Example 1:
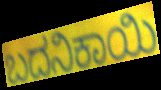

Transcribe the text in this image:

ಬದನಿಕಾಯಿ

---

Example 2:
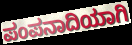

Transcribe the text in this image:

ಪಂಪನಾದಿಯಾಗಿ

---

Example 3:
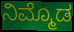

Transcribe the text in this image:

ನಿಮ್ಮೊಡ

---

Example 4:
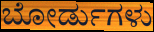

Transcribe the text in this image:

ಬೋರ್ಡುಗಳು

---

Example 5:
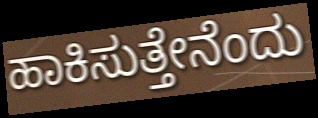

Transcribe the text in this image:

ಹಾಕಿಸುತ್ತೇನೆಂದು